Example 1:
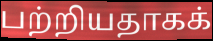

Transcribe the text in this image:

பற்றியதாகக்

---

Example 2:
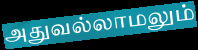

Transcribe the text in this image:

அதுவல்லாமலும்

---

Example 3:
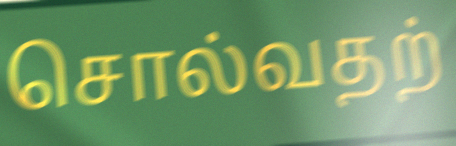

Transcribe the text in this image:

சொல்வதற்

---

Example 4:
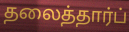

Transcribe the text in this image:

தலைத்தார்ப்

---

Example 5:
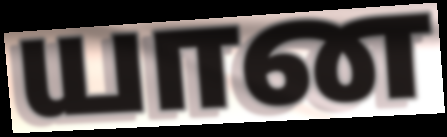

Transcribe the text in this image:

யான